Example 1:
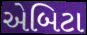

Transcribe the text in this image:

એબિટા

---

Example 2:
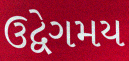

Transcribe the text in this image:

ઉદ્વેગમય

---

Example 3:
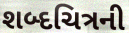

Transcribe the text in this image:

શબ્દચિત્રની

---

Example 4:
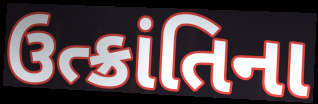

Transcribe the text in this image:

ઉત્ક્રાંતિના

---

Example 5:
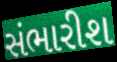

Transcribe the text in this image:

સંભારીશ